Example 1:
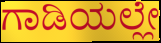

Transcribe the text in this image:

ಗಾಡಿಯಲ್ಲೇ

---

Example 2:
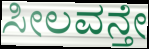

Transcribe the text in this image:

ಸೀಲವನ್ತೇ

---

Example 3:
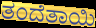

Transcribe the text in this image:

ತಂದೆತಾಯಿ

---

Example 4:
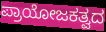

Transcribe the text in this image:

ಪ್ರಾಯೋಜಕತ್ವದ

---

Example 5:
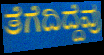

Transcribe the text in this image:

ತೆಗೆದಿದ್ದೆವು